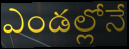
ఎండల్లోనే